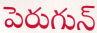
పెరుగున్